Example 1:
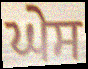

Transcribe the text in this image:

ਘੇਸ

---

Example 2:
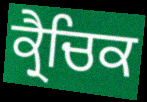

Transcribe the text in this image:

ਕ੍ਰੈਚਿਕ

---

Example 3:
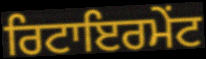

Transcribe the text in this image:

ਰਿਟਾਇਰਮੇਂਟ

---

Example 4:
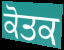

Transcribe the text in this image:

ਕੋਤਕ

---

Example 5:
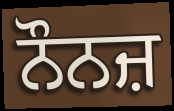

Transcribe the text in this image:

ਨੌਨਜ਼